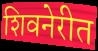
शिवनेरीत